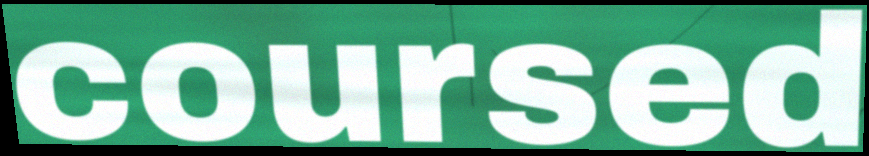
coursed